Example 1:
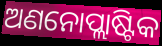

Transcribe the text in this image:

ଅଣନୋପ୍ଲାଷ୍ଟିକ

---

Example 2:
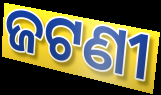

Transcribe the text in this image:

ଜଟଣୀ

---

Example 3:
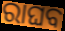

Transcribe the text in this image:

ରାଘବ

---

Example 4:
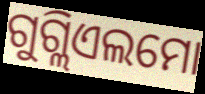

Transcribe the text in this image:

ଗୁଗ୍ଲିଏଲମୋ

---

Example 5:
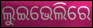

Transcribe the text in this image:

ଲୁଇଭେଲିରେ